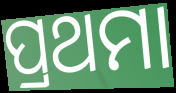
ପ୍ରଥମା